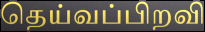
தெய்வப்பிறவி